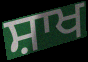
ਸ਼ਾਖ